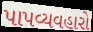
પાપવ્યવહારો